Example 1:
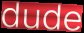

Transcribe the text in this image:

dude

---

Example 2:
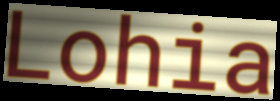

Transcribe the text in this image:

Lohia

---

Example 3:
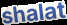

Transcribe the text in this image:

shalat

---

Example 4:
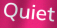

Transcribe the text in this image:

Quiet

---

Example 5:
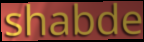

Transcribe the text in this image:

shabde